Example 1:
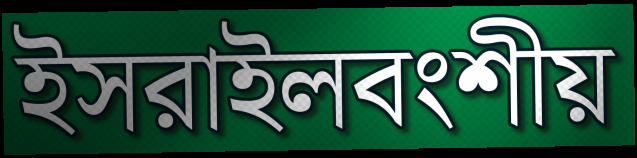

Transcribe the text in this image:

ইসরাইলবংশীয়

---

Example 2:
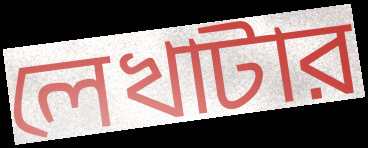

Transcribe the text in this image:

লেখাটার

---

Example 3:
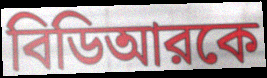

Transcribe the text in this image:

বিডিআরকে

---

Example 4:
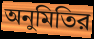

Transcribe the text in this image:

অনুমিতির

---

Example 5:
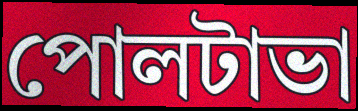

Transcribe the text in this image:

পোলটাভা